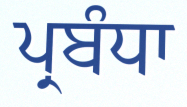
ਪ੍ਰਬੰਧਾ